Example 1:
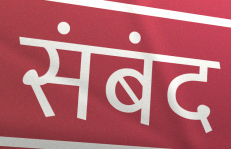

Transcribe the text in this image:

संबंद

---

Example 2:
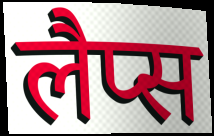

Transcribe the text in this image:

लैप्स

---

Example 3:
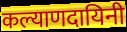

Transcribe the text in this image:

कल्याणदायिनी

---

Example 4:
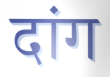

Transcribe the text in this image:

दांग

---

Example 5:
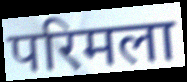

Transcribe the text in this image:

परिमला